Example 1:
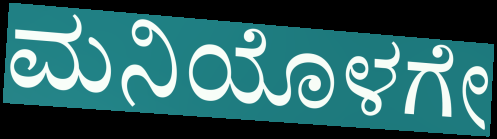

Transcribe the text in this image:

ಮನಿಯೊಳಗೇ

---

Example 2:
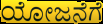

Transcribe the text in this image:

ಯೋಜನೆಗೆ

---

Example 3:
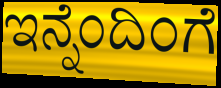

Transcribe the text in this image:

ಇನ್ನೆಂದಿಂಗೆ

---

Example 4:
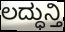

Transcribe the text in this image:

ಲದ್ಧುನ್ತಿ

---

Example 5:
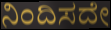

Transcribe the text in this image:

ನಿಂದಿಸದೇ